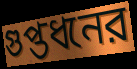
গুপ্তধনের